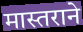
मास्तराने